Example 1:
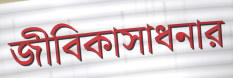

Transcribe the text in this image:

জীবিকাসাধনার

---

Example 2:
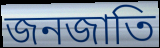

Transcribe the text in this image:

জনজাতি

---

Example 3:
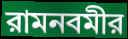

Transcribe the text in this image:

রামনবমীর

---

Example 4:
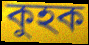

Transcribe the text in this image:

কুহক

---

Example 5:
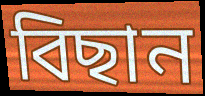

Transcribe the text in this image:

বিছান